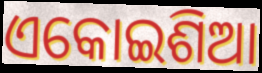
ଏକୋଇଶିଆ